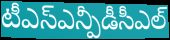
టీఎస్ఎన్పీడీసీఎల్